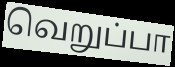
வெறுப்பா